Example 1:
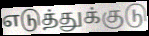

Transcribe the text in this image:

எடுத்துக்குடு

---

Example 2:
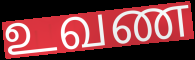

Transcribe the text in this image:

உவண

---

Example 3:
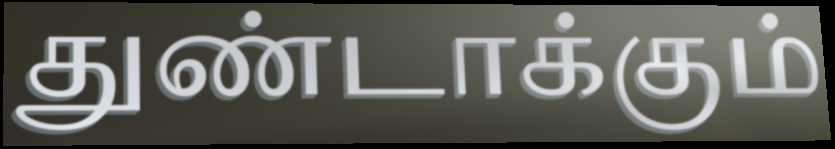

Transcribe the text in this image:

துண்டாக்கும்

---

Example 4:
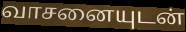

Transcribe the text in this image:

வாசனையுடன்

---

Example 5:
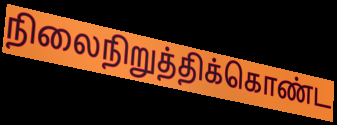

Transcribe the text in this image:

நிலைநிறுத்திக்கொண்ட